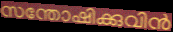
സന്തോഷിക്കുവിൻ